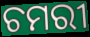
ଚମରୀ